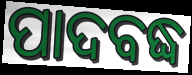
ପାଦବଦ୍ଧ